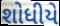
શોધીયે